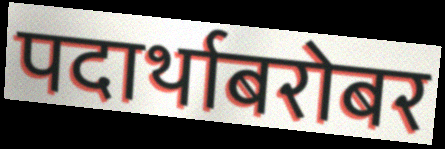
पदार्थाबरोबर